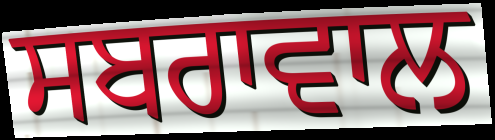
ਸਬਰਾਵਾਲ